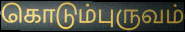
கொடும்புருவம்